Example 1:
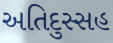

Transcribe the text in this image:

અતિદુસ્સહ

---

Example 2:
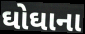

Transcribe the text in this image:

ઘોઘાના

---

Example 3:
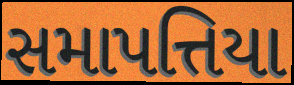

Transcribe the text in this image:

સમાપત્તિયા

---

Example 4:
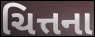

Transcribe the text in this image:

ચિત્તના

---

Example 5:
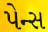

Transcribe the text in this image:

પેન્સ